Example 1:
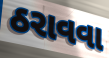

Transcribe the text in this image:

ઠરાવવા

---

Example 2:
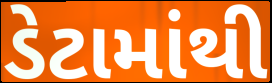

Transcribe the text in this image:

ડેટામાંથી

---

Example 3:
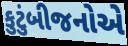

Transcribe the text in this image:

કુટુંબીજનોએ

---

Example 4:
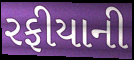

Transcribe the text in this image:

રફીયાની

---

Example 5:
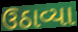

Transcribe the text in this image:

ઉઠાવ્યા